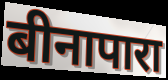
बीनापारा